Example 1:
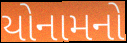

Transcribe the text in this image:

યોનામનો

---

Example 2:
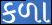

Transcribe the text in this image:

કળા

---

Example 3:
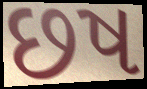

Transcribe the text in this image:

છષ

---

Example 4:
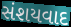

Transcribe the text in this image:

સંશયવાદ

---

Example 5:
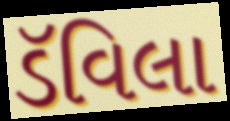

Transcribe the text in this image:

ડૅવિલા